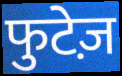
फुटेज़